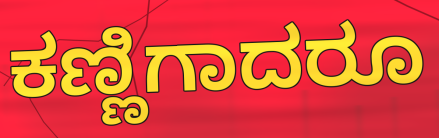
ಕಣ್ಣಿಗಾದರೂ